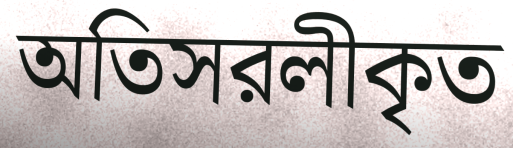
অতিসরলীকৃত